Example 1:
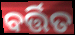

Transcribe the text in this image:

ବର୍ତ୍ତିତ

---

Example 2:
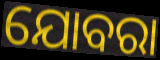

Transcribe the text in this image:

ଯୋବରା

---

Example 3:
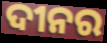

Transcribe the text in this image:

ଦୀନର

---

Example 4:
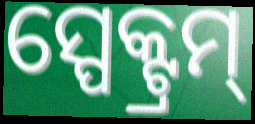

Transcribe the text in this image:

ସ୍ପେକ୍ଟ୍ରମ୍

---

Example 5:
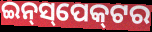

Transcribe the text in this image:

ଇନ୍‌ସ୍‌ପେକ୍‌ଟର